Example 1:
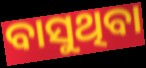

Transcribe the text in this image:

ବାସୁଥିବା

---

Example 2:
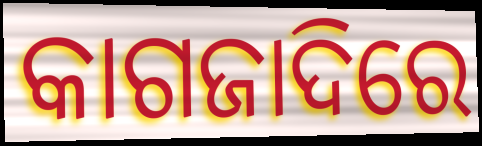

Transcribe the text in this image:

କାଗଜାଦିରେ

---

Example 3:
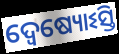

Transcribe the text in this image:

ଦ୍ୱେଷ୍ୟୋଽସ୍ତି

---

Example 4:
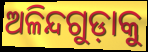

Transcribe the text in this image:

ଅଳିନ୍ଦଗୁଡ଼ାକୁ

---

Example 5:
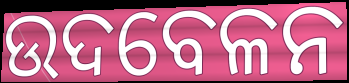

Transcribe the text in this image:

ଉଦବେଳନ